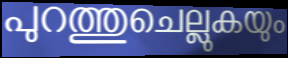
പുറത്തുചെല്ലുകയും